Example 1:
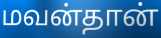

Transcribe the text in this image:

மவன்தான்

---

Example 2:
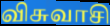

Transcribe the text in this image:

விசுவாசி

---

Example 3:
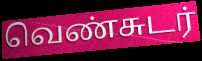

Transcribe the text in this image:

வெண்சுடர்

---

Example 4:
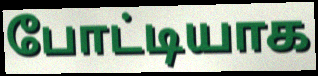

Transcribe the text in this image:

போட்டியாக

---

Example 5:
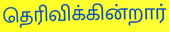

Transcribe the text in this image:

தெரிவிக்கின்றார்